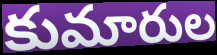
కుమారుల